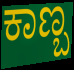
ಕಾಣ್ಬ